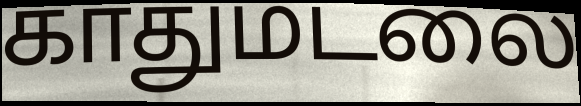
காதுமடலை